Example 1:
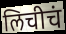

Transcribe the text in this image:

लिचीचं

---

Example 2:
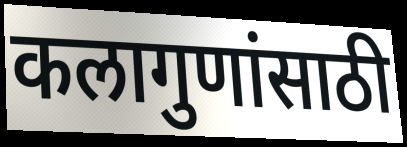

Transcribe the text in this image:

कलागुणांसाठी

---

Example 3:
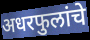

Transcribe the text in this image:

अधरफुलांचे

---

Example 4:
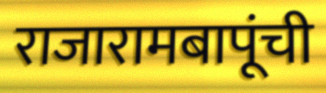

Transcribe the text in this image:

राजारामबापूंची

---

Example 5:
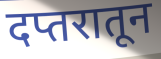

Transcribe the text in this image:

दप्तरातून